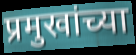
प्रमुखांच्या